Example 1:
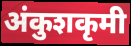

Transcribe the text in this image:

अंकुशकृमी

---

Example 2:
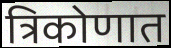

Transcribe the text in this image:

त्रिकोणात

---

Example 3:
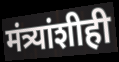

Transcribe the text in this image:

मंत्र्यांशीही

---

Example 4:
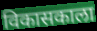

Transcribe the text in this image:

विकासकाला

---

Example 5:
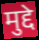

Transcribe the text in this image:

मुद्दे